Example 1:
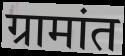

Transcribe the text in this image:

ग्रामांत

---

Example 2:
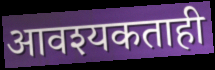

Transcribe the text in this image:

आवश्यकताही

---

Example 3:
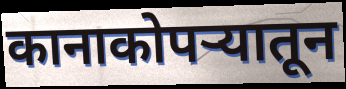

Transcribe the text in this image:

कानाकोपऱ्यातून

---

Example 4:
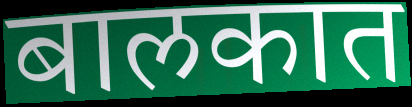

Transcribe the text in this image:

बालकात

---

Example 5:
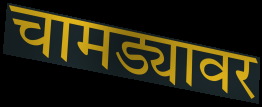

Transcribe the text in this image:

चामड्यावर